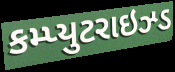
કમ્પ્યુટરાઇઝ્ડ